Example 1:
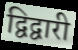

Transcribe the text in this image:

द्विद्वारी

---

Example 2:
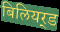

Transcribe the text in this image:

बिलियर्ड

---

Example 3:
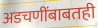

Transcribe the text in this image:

अडचणींबाबतही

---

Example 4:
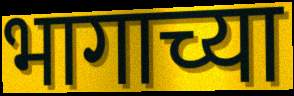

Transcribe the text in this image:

भागाच्या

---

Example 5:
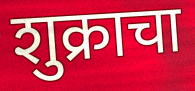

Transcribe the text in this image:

शुक्राचा